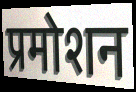
प्रमोशन